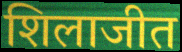
शिलाजीत